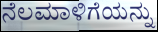
ನೆಲಮಾಳಿಗೆಯನ್ನು